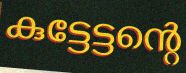
കുട്ടേട്ടന്റെ